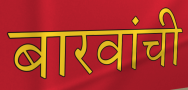
बारवांची